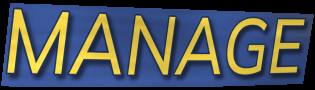
MANAGE